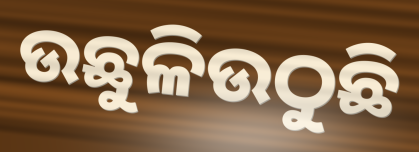
ଉଛୁଳିଉଠୁଛି